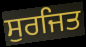
ਸੁਰਜਿਤ